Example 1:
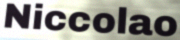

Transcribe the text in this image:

Niccolao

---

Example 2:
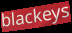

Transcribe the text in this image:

blackeys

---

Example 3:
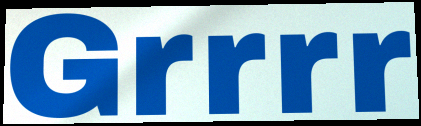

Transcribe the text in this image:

Grrrr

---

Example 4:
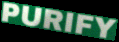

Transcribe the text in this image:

PURIFY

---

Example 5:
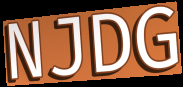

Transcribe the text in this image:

NJDG